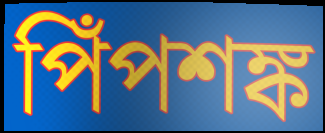
পিঁপশঙ্ক